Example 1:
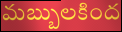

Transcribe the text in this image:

మబ్బులకింద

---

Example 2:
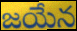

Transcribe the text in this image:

జయేన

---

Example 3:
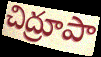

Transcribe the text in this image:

చిద్రూపా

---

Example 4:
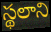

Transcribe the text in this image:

స్థలాని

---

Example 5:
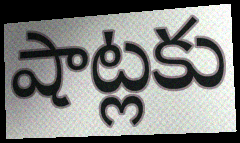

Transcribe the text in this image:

షాట్లకు